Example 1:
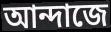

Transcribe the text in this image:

আন্দাজে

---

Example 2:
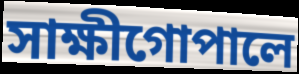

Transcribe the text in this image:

সাক্ষীগোপালে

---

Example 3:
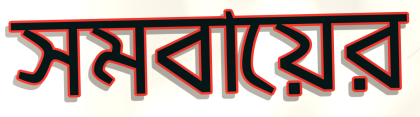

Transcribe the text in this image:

সমবায়ের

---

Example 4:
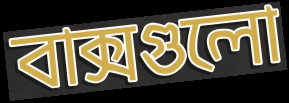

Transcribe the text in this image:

বাক্সগুলো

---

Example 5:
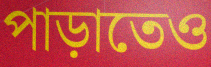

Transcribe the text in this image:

পাড়াতেও